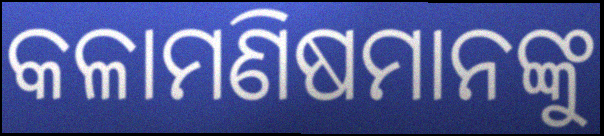
କଳାମଣିଷମାନଙ୍କୁ